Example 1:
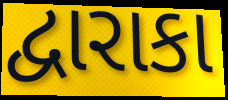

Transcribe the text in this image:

દ્વારાકા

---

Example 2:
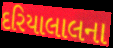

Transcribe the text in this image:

દરિયાલાલના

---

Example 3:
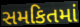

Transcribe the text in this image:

સમકિતમાં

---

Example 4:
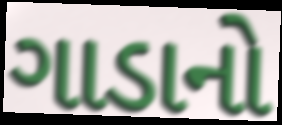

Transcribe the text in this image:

ગાડાનો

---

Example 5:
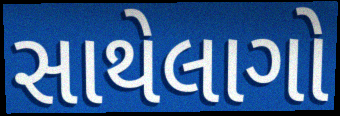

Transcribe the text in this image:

સાથેલાગો